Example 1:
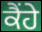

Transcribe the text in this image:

ਕੈਂਹੇ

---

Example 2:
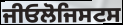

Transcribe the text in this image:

ਜੀਓਲੋਜਿਸਟਸ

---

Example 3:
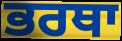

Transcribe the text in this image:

ਭਰਥਾ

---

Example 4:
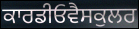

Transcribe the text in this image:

ਕਾਰਡੀਓਵੈਸਕੁਲਰ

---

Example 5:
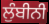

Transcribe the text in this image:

ਲੁੰਬੀਨੀ